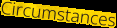
Circumstances